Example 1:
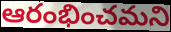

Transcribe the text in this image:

ఆరంభించమని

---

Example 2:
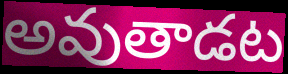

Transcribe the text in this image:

అవుతాడట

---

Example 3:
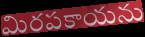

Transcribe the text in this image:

మిరపకాయను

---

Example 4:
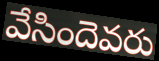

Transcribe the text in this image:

వేసిందెవరు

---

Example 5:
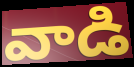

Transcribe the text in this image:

వాడి